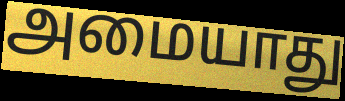
அமையாது